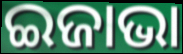
ଇଜାଭା